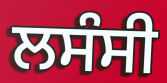
ਲਸੰਸੀ